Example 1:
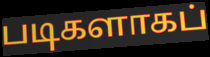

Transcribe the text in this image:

படிகளாகப்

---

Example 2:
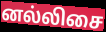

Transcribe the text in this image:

னல்லிசை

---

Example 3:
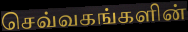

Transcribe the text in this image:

செவ்வகங்களின்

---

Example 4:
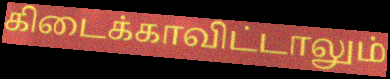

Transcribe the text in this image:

கிடைக்காவிட்டாலும்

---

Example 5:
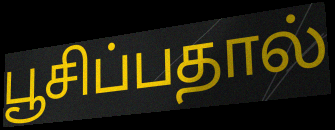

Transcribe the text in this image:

பூசிப்பதால்